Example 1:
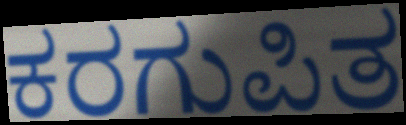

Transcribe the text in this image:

ಕರಗುಪಿತ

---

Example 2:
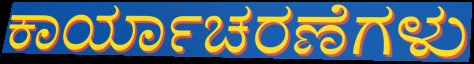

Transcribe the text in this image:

ಕಾರ್ಯಾಚರಣೆಗಳು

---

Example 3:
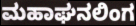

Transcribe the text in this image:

ಮಹಾಘನಲಿಂಗ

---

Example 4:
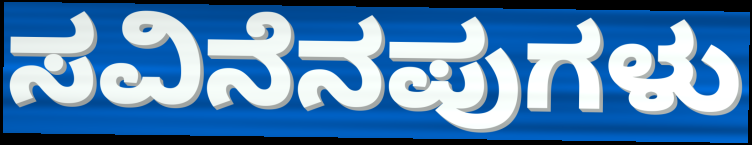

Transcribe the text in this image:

ಸವಿನೆನಪುಗಳು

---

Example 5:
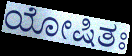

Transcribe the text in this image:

ಯೋಷಿತಃ